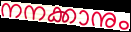
നനക്കാനും